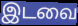
இடவை